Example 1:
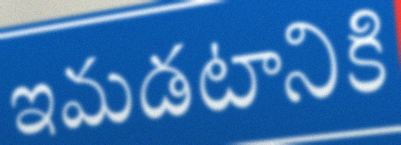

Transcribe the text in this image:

ఇమడటానికి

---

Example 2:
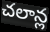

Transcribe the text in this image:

చలాన్ల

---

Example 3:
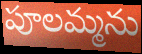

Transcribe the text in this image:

పూలమ్మను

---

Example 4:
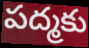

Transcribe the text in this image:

పద్మకు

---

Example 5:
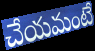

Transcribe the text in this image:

చేయమంటే